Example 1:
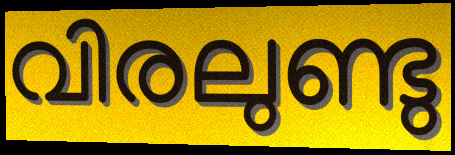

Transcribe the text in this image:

വിരലുണ്ടു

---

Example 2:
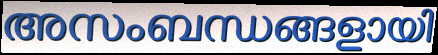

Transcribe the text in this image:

അസംബന്ധങ്ങളായി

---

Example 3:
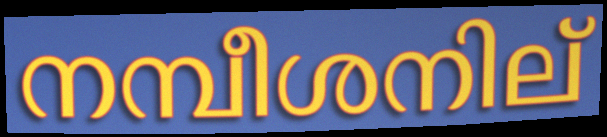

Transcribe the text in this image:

നമ്പീശനില്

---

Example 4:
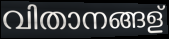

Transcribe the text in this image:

വിതാനങ്ങള്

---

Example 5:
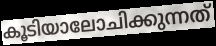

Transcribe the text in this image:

കൂടിയാലോചിക്കുന്നത്